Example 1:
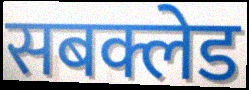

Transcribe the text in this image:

सबक्लेड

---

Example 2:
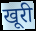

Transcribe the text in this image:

खूरी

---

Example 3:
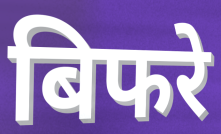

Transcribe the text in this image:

बिफरे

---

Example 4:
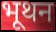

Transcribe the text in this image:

भूथन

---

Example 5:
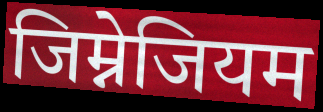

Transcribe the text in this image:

जिम्नेजियम